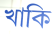
খাকি